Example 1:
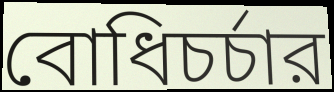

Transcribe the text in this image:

বোধিচর্চার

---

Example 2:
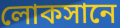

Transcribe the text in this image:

লোকসানে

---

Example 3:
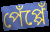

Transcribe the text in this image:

পেঁপ্পেঁ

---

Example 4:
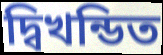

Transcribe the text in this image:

দ্বিখন্ডিত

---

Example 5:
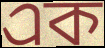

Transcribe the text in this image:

এক